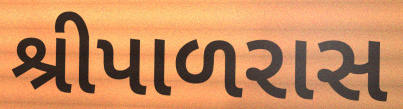
શ્રીપાળરાસ